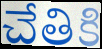
చేతికి